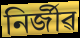
নিৰ্জীৱ